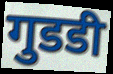
गुडडी